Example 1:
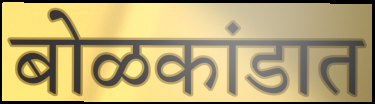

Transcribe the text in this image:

बोळकांडात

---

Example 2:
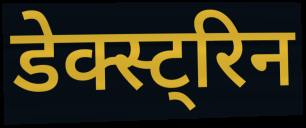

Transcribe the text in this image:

डेक्स्ट्रिन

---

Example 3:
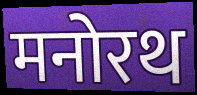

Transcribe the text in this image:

मनोरथ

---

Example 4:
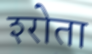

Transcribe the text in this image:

श्रोता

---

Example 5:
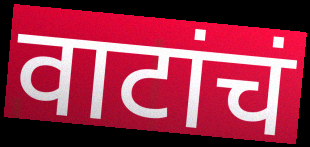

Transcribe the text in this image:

वाटांचं